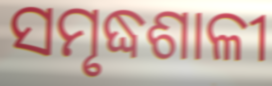
ସମୃଦ୍ଧଶାଳୀ